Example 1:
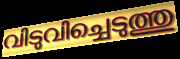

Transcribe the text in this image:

വിടുവിച്ചെടുത്തു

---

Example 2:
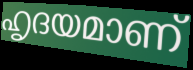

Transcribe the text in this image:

ഹൃദയമാണ്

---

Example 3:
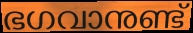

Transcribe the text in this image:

ഭഗവാനുണ്ട്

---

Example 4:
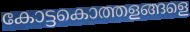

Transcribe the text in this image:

കോട്ടകൊത്തളങ്ങളെ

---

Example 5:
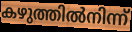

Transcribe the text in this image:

കഴുത്തിൽനിന്ന്